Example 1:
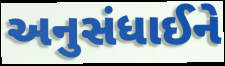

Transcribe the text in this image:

અનુસંધાઈને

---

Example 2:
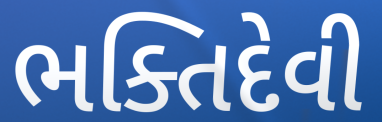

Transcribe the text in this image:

ભક્તિદેવી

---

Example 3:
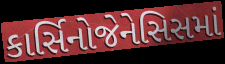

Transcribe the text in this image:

કાર્સિનોજેનેસિસમાં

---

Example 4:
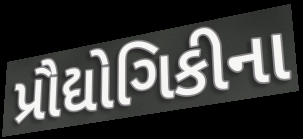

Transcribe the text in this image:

પ્રૌદ્યોગિકીના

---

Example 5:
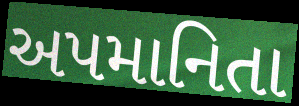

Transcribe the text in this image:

અપમાનિતા